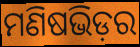
ମଣିଷଭିଡ଼ର